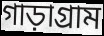
গাড়াগ্রাম